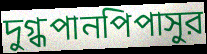
দুগ্ধপানপিপাসুর